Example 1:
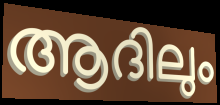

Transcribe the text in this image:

ആദിലും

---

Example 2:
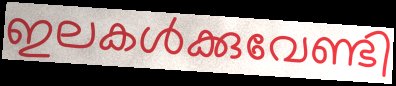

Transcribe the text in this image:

ഇലകൾക്കുവേണ്ടി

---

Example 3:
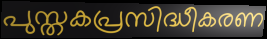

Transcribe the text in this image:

പുസ്തകപ്രസിദ്ധീകരണ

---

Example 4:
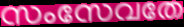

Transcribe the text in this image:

സംസേവതേ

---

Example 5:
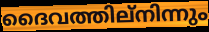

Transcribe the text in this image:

ദൈവത്തില്നിന്നും